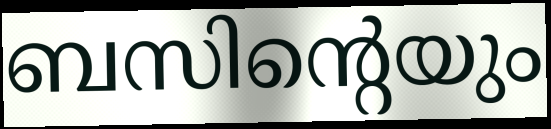
ബസിന്റെയും